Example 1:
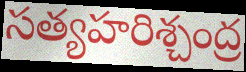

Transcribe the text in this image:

సత్యహరిశ్చంద్ర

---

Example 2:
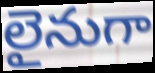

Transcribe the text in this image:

లైనుగా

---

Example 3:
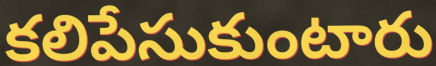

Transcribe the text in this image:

కలిపేసుకుంటారు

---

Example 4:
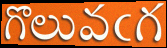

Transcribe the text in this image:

గొలువఁగ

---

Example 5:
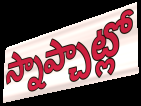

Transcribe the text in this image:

స్నాప్చాట్లో